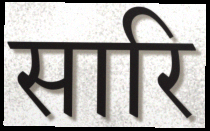
सारि